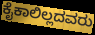
ಕೈಕಾಲಿಲ್ಲದವರು